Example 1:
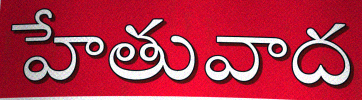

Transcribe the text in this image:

హేతువాద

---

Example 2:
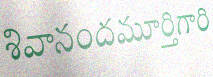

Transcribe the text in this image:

శివానందమూర్తిగారి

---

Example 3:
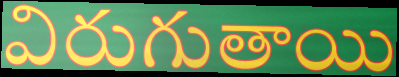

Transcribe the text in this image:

విరుగుతాయి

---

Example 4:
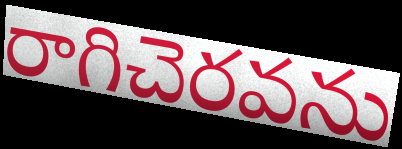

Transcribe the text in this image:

రాగిచెరవను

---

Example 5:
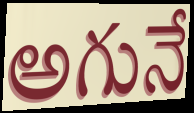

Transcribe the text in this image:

అగునే